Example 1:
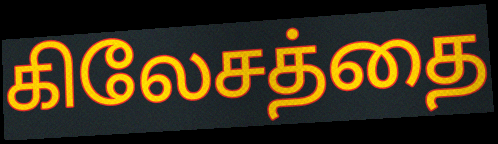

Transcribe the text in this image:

கிலேசத்தை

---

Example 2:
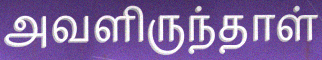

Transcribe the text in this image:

அவளிருந்தாள்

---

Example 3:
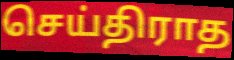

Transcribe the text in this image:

செய்திராத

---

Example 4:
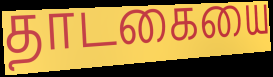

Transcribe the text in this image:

தாடகையை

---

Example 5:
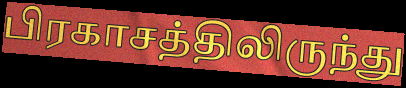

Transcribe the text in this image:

பிரகாசத்திலிருந்து